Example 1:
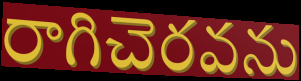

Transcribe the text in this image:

రాగిచెరవను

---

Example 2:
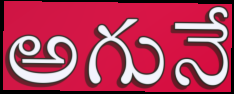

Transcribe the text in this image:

అగునే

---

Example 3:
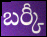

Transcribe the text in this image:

బర్కీ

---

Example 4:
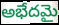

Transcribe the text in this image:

అభేదమై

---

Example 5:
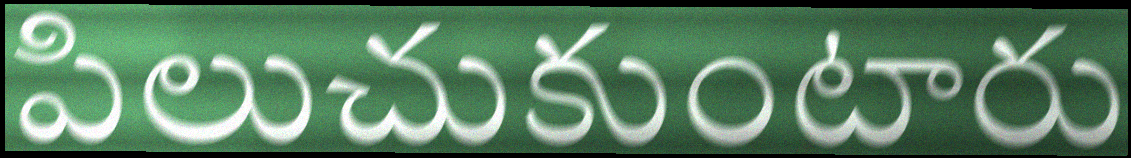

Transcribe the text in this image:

పిలుచుకుంటారు